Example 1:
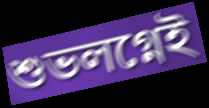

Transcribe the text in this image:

শুভলগ্নেই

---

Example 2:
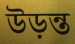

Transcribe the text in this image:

উড়ন্ত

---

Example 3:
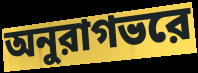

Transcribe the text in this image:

অনুরাগভরে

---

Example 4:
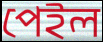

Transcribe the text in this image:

পেইল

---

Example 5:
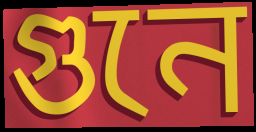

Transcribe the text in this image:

গুনে